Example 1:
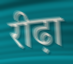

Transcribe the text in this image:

रीढ़ा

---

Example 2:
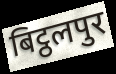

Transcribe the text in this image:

बिट्ठलपुर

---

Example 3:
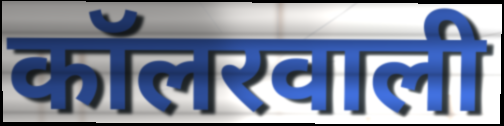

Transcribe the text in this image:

कॉलरवाली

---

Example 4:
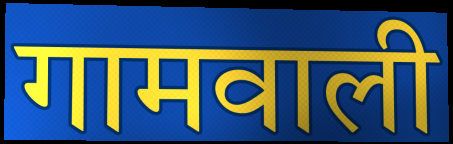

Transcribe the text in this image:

गामवाली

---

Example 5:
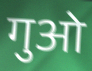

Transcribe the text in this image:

गुओ